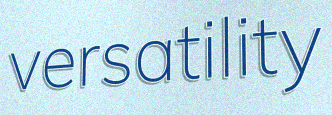
versatility